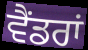
ਵੈਂਡਰਾਂ